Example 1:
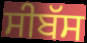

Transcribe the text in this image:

ਸੀਬੱਸ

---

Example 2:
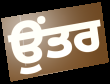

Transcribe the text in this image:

ਉਂਤਰ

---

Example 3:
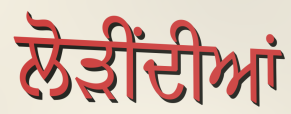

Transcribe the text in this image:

ਲੋੜੀਂਦੀਆਂ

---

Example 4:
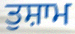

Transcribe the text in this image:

ਤੁਸ਼ਾਮ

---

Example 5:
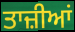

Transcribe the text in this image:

ਤਾਜ਼ੀਆਂ